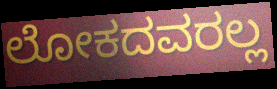
ಲೋಕದವರಲ್ಲ